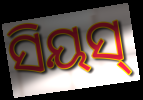
ସିୟସ୍